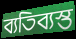
ব্যতিব্যস্ত